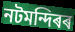
নটমন্দিৰৰ